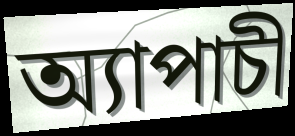
অ্যাপাচী